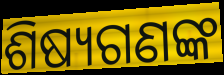
ଶିଷ୍ୟଗଣଙ୍କ